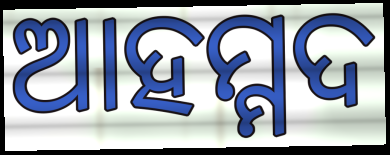
ଆହମ୍ମଦ